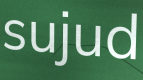
sujud